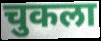
चुकला